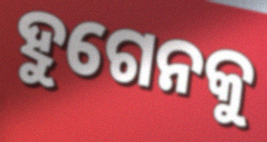
ହୁଗେନକୁ